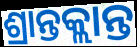
ଶ୍ରାନ୍ତକ୍ଲାନ୍ତ